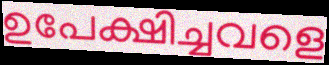
ഉപേക്ഷിച്ചവളെ